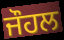
ਜੌਹਲ